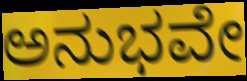
ಅನುಭವೇ